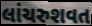
લાંચરુશવત